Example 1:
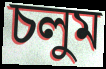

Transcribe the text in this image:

চলুম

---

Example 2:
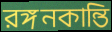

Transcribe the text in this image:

রঙ্গনকান্তি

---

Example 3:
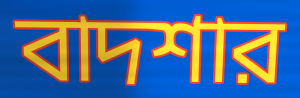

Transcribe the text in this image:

বাদশার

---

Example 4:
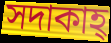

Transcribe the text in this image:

সদাকাহ্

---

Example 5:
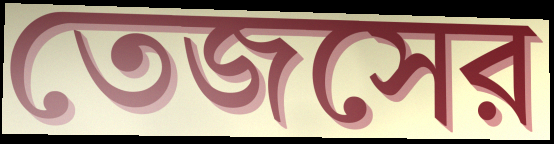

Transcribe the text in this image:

তেজসের